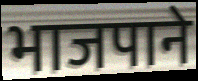
भाजपाने